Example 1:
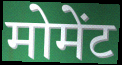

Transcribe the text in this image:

मोमेंट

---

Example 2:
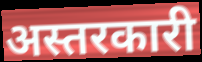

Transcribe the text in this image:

अस्तरकारी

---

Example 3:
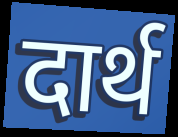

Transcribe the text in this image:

दार्थ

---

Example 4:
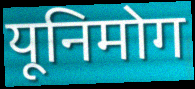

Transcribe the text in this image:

यूनिमोग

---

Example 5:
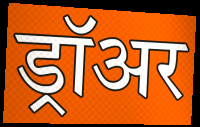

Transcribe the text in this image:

ड्रॉअर